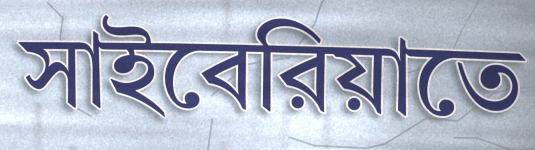
সাইবেরিয়াতে